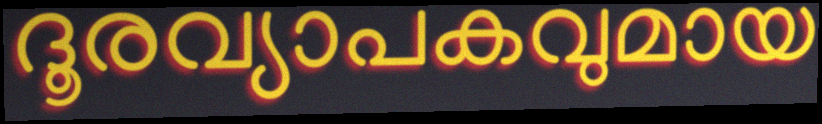
ദൂരവ്യാപകവുമായ